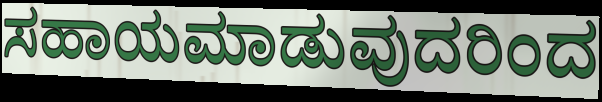
ಸಹಾಯಮಾಡುವುದರಿಂದ